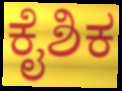
ಕೈಶಿಕ